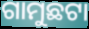
ଗାମୁଛଟା